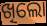
ଖିଲୋ